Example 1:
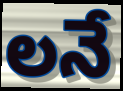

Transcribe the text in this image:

లనే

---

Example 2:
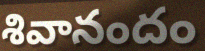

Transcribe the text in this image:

శివానందం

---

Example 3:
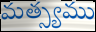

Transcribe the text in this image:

మత్స్యము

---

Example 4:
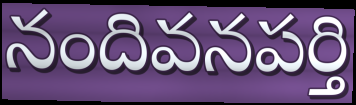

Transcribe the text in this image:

నందివనపర్తి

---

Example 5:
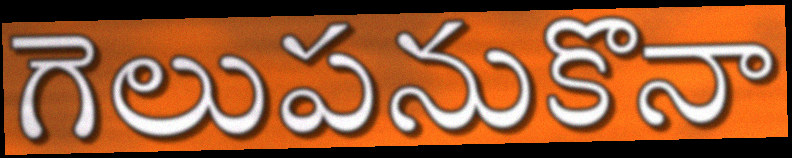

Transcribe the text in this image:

గెలుపనుకొనా